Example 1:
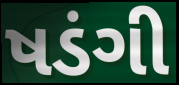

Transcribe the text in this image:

ષડંગી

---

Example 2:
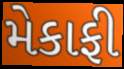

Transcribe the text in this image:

મેકાફી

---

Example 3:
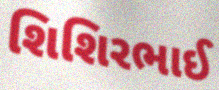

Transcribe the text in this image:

શિશિરભાઈ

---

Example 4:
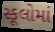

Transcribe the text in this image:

સ્કૂલોમાં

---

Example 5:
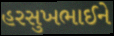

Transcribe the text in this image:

હરસુખભાઈને